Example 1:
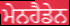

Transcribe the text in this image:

ਮੇਨਹੈਡੇਨ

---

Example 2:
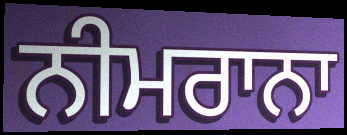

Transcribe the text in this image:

ਨੀਮਰਾਨਾ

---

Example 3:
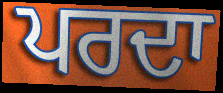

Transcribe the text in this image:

ਪਰਦਾ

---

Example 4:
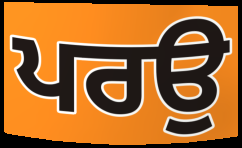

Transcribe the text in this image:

ਪਰਉ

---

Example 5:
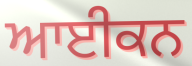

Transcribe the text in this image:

ਆਈਕਨ